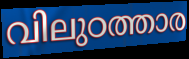
വിലുഠത്താര